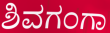
ಶಿವಗಂಗಾ